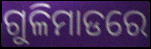
ଗୁଳିମାଡରେ